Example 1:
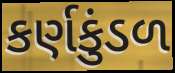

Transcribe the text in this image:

કર્ણકુંડળ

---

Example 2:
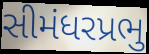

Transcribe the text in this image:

સીમંધરપ્રભુ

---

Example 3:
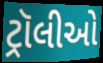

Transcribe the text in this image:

ટ્રૉલીઓ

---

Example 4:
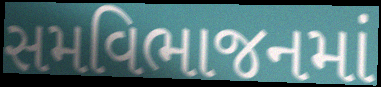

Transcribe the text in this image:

સમવિભાજનમાં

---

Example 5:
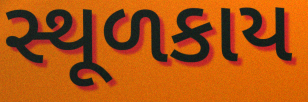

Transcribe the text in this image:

સ્થૂળકાય